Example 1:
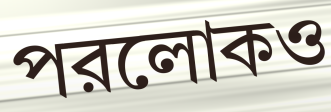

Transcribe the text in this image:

পরলোকও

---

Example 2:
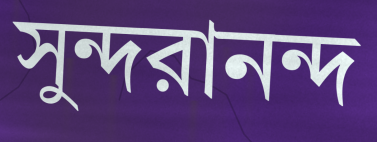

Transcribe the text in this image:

সুন্দরানন্দ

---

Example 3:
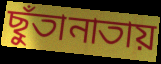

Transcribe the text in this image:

ছুঁতানাতায়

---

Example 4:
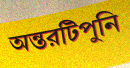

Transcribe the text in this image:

অন্তরটিপুনি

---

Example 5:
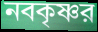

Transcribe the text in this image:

নবকৃষ্ণর